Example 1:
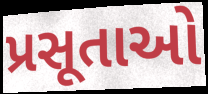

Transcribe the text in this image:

પ્રસૂતાઓ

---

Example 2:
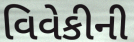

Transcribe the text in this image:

વિવેકીની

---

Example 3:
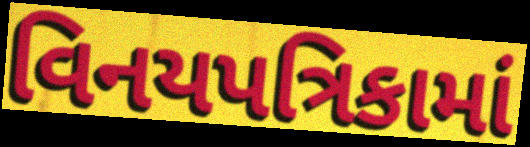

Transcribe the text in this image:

વિનયપત્રિકામાં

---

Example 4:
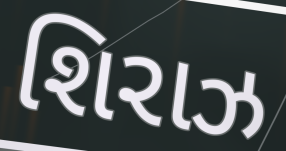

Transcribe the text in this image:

શિરાઝ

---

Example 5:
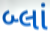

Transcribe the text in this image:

બ્લાં